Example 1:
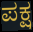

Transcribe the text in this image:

ಪಕ್ಷ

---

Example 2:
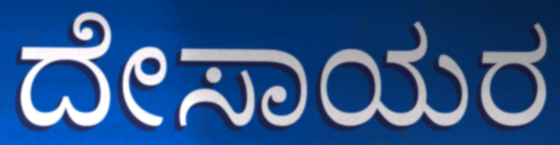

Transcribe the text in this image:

ದೇಸಾಯರ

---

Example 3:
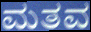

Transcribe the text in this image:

ಮತವ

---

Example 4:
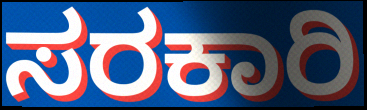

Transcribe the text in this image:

ಸರಕಾರಿ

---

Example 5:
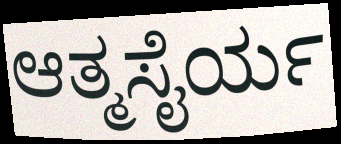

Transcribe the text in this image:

ಆತ್ಮಸೈರ್ಯ